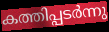
കത്തിപ്പടർന്നു